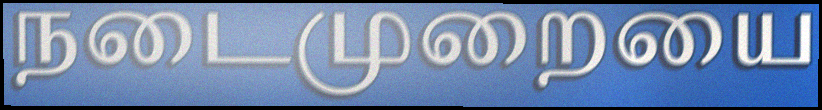
நடைமுறையை